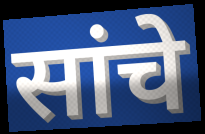
सांचे